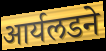
आर्यलडने